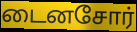
டைனசோர்